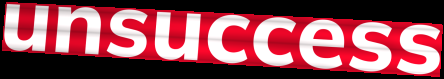
unsuccess